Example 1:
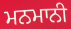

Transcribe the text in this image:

ਮਨਮਾਨੀ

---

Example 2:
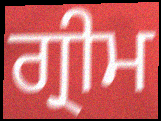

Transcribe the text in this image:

ਗ੍ਰੀਮ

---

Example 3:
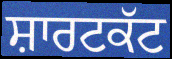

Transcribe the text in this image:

ਸ਼ਾਰਟਕੱਟ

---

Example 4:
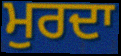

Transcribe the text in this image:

ਮੁਰਦਾ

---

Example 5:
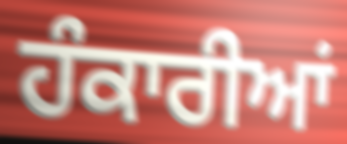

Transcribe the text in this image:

ਹੰਕਾਰੀਆਂ